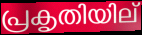
പ്രകൃതിയില്